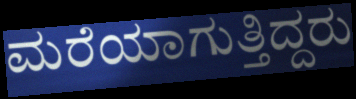
ಮರೆಯಾಗುತ್ತಿದ್ದರು